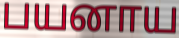
பயனாய